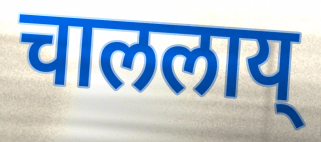
चाललाय्